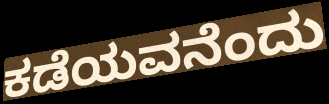
ಕಡೆಯವನೆಂದು